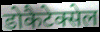
डोकैटेक्सेल